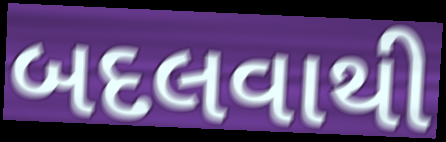
બદલવાથી